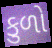
કુળો